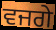
ਵਜਗੇ